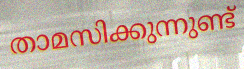
താമസിക്കുന്നുണ്ട്